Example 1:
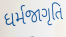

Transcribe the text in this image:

ધર્મજાગૃતિ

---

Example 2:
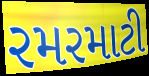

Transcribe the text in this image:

રમરમાટી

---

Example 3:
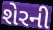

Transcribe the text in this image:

શેરની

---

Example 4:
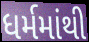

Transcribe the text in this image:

ધર્મમાંથી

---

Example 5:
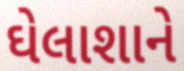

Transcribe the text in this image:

ઘેલાશાને